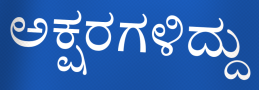
ಅಕ್ಷರಗಳಿದ್ದು